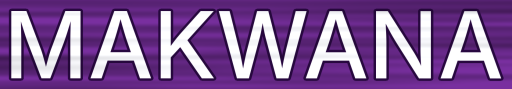
MAKWANA